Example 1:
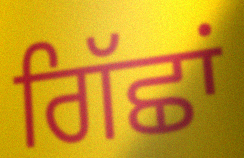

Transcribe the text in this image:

ਗਿੱਛਾਂ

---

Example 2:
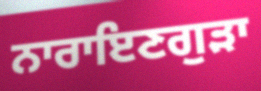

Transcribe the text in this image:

ਨਾਰਾਇਣਗੁੜਾ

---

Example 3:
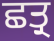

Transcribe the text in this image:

ਛਤ੍ਰ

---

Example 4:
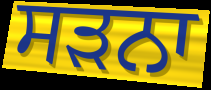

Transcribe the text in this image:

ਸੜਨਾ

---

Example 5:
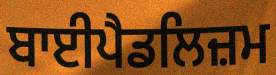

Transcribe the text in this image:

ਬਾਈਪੈਡਲਿਜ਼ਮ